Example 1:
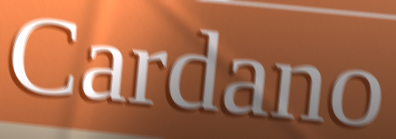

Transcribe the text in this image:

Cardano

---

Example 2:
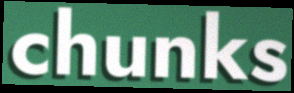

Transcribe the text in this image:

chunks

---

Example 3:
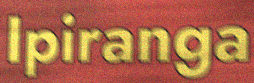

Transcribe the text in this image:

Ipiranga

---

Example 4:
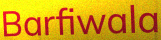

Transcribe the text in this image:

Barfiwala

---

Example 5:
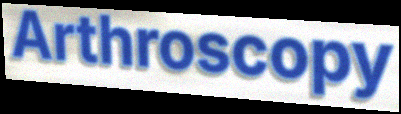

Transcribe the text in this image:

Arthroscopy